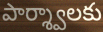
పార్శ్వాలకు